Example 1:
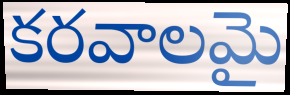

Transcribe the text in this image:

కరవాలమై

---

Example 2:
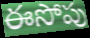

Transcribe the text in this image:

ఈసోపు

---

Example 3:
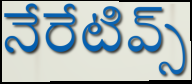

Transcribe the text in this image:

నేరేటివ్స్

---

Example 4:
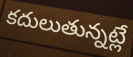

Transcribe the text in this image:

కదులుతున్నట్లే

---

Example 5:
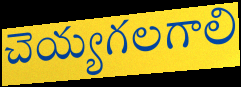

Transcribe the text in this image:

చెయ్యగలగాలి